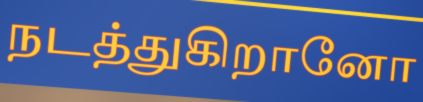
நடத்துகிறானோ